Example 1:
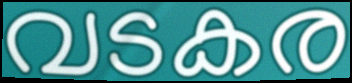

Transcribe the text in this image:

വടകര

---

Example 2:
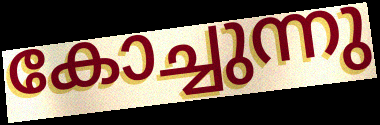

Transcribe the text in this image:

കോച്ചുന്നു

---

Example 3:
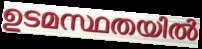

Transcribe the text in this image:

ഉടമസ്ഥതയിൽ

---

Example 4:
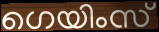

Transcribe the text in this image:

ഗെയിംസ്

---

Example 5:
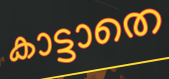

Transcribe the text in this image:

കാട്ടാതെ